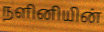
நளினியின்